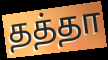
தத்தா